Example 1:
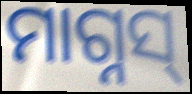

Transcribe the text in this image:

ମାଗ୍ନସ୍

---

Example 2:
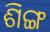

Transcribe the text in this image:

ଶିଙ୍ଗ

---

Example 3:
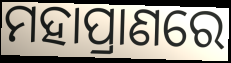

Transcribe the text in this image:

ମହାପ୍ରାଣରେ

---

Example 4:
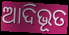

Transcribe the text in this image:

ଆଦିଭୂତ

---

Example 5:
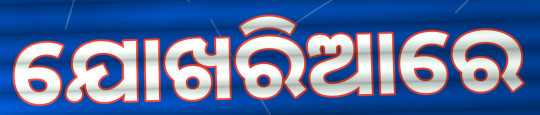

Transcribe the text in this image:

ଯୋଖରିଆରେ